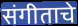
संगीताचे